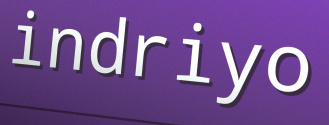
indriyo